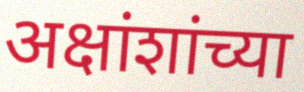
अक्षांशांच्या